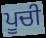
ਪੂਚੀ